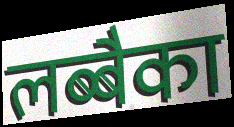
लब्बैका